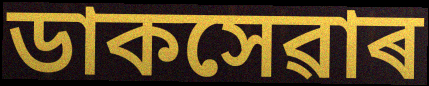
ডাকসেৱাৰ